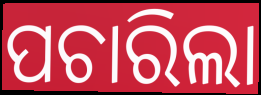
ପଚାରିଲା